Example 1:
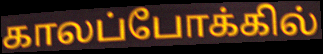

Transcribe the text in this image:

காலப்போக்கில்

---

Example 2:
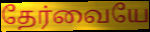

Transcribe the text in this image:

தேர்வையே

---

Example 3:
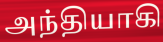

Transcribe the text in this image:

அந்தியாகி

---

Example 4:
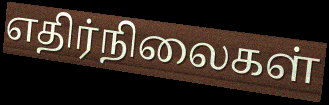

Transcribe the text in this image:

எதிர்நிலைகள்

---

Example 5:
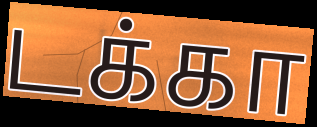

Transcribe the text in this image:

டக்கா